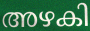
അഴകി